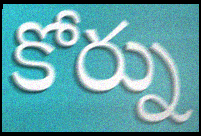
కోర్ను